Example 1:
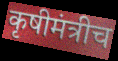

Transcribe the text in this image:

कृषीमंत्रीच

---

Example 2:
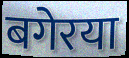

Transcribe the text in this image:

बगेरया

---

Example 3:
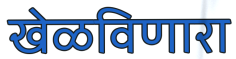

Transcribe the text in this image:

खेळविणारा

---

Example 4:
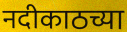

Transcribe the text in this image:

नदीकाठच्या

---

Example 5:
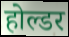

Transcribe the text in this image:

होल्डर